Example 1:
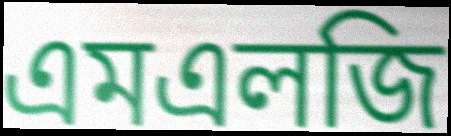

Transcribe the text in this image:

এমএলজি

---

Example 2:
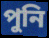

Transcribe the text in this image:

পুনি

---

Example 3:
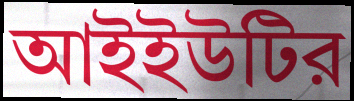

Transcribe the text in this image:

আইইউটির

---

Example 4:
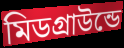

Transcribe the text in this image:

মিডগ্রাউন্ডে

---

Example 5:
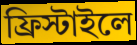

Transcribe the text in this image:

ফ্রিস্টাইলে